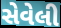
સેવેલી